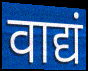
वाद्यं